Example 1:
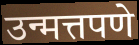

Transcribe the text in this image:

उन्मत्तपणे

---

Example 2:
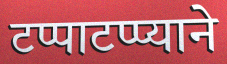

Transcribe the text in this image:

टप्पाटप्प्याने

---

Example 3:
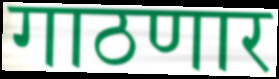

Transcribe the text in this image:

गाठणार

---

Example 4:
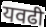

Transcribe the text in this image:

यवढी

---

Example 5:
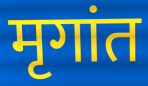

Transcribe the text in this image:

मृगांत